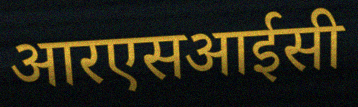
आरएसआईसी